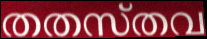
തതസ്തവ